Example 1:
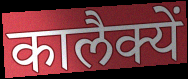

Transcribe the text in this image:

कालैक्यें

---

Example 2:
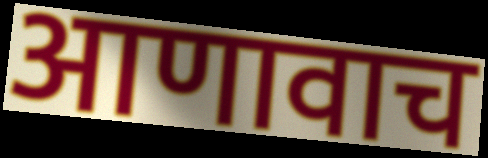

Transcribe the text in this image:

आणावाच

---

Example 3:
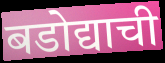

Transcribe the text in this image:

बडोद्याची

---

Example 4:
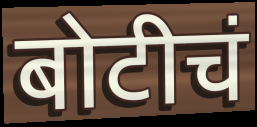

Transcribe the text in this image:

बोटीचं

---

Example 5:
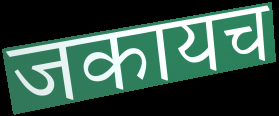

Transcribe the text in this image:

जकायच